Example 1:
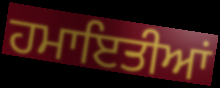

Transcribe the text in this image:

ਹਮਾਇਤੀਆਂ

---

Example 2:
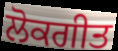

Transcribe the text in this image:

ਲੋਕਗੀਤ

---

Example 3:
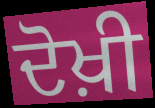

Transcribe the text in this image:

ਦੋਖ਼ੀ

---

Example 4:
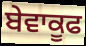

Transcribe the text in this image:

ਬੇਵਾਕੂਫ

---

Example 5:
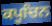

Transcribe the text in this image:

ਕਪੂਚਿਨ